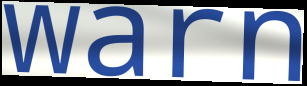
warn